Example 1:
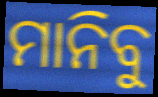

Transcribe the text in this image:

ମାନିବୁ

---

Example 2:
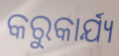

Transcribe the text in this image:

କରୁକାର୍ଯ୍ୟ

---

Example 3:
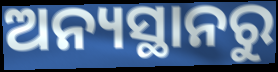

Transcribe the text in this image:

ଅନ୍ୟସ୍ଥାନରୁ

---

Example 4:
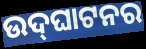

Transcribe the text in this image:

ଉଦ୍‍ଘାଟନର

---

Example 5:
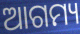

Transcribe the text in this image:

ଆଗମ୍ୟ